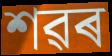
শৱৰ